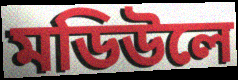
মডিউলে